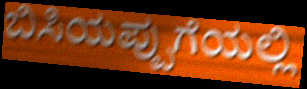
ಬಿಸಿಯಪ್ಪುಗೆಯಲ್ಲಿ